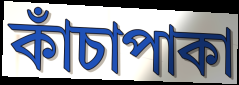
কাঁচাপাকা